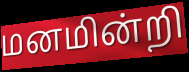
மனமின்றி